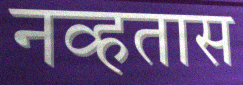
नव्हतास